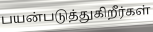
பயன்படுத்துகிறீர்கள்